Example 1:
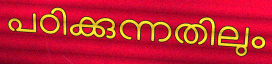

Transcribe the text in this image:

പഠിക്കുന്നതിലും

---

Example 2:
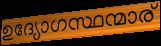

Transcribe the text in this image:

ഉദ്യോഗസ്ഥന്മാര്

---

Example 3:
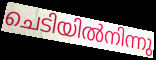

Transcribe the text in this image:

ചെടിയിൽനിന്നു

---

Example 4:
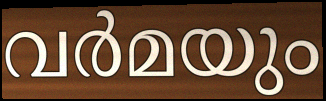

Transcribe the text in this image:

വർമയും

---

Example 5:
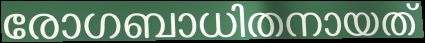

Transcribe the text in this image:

രോഗബാധിതനായത്